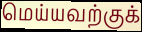
மெய்யவற்குக்